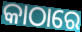
କାଠାରେ